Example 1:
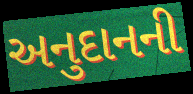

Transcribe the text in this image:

અનુદાનની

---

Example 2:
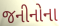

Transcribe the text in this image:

જનીનોના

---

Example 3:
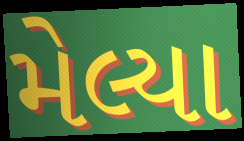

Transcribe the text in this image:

મેલ્યા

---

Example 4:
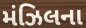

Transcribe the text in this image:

મંઝિલના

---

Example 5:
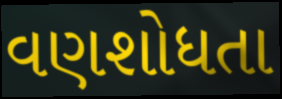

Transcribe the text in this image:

વણશોધતા